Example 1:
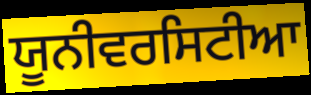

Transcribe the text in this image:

ਯੂਨੀਵਰਸਿਟੀਆ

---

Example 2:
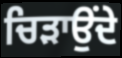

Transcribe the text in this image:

ਚਿੜਾਉਂਦੇ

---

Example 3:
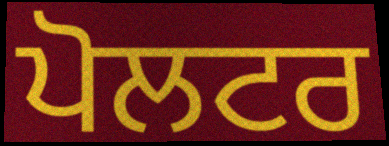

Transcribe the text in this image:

ਪੋਲਟਰ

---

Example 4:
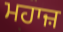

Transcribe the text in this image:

ਮਹਾਜ਼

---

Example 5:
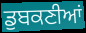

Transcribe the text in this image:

ਡੁਬਕਣੀਆਂ